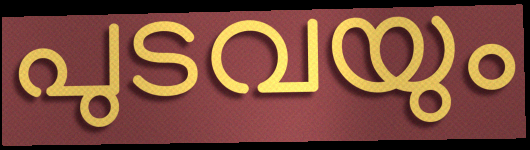
പുടവയും